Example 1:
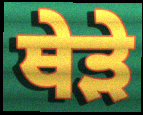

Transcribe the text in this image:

ਥੇੜੇ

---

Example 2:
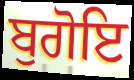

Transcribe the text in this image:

ਬੁਗੋਇ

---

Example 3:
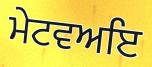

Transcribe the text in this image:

ਮੇਟਵਅਇ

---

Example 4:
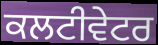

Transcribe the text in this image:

ਕਲਟੀਵੇਟਰ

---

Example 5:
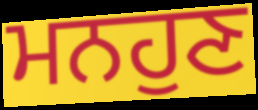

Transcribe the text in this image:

ਮਨਹੁਣ